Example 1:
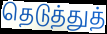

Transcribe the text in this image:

தெடுத்துத்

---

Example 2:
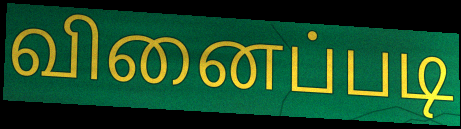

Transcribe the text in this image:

வினைப்படி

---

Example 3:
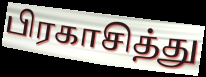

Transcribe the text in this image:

பிரகாசித்து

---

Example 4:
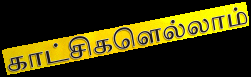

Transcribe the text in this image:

காட்சிகளெல்லாம்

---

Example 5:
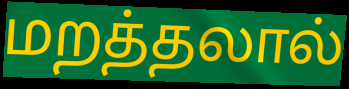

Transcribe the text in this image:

மறத்தலால்